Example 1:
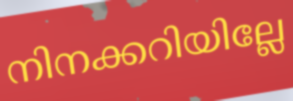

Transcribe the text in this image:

നിനക്കറിയില്ലേ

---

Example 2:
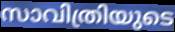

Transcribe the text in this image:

സാവിത്രിയുടെ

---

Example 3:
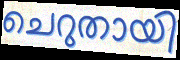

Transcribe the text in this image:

ചെറുതായി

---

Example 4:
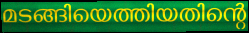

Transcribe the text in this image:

മടങ്ങിയെത്തിയതിന്റെ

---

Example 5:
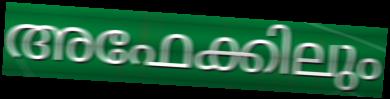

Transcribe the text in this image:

അഫേക്കിലും